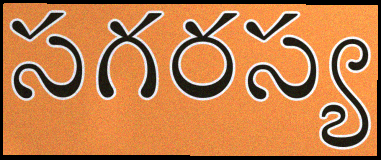
సగరస్య